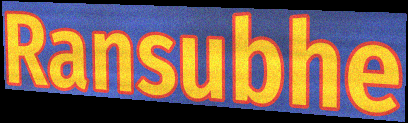
Ransubhe